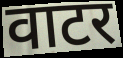
वाटर